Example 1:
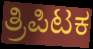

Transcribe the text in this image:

ತ್ರಿಪಿಟಕ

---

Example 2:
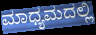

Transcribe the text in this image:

ಮಾಧ್ಯಮದಲ್ಲಿ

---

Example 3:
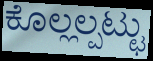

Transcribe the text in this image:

ಕೊಲ್ಲಲ್ಪಟ್ಟು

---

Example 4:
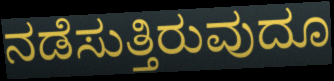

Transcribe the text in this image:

ನಡೆಸುತ್ತಿರುವುದೂ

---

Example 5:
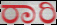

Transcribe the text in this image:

ರಾರಿ